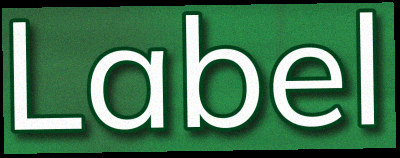
Label